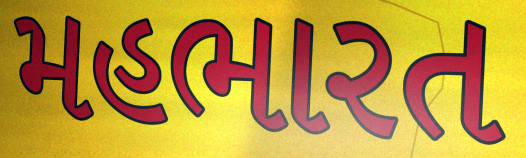
મહભારત